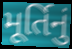
મૂર્તિનું